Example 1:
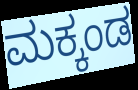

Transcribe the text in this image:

ಮಕ್ಕಂಡ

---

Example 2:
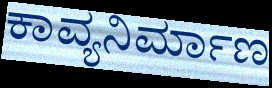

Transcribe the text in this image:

ಕಾವ್ಯನಿರ್ಮಾಣ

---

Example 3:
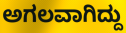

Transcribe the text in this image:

ಅಗಲವಾಗಿದ್ದು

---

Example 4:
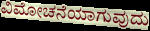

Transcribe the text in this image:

ವಿಮೋಚನೆಯಾಗುವುದು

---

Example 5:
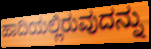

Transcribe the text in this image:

ಹಾದಿಯಲ್ಲಿರುವುದನ್ನು